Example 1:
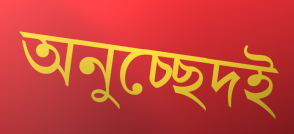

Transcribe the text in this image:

অনুচ্ছেদই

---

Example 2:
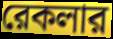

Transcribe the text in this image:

রেকলার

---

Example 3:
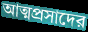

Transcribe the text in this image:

আত্মপ্রসাদের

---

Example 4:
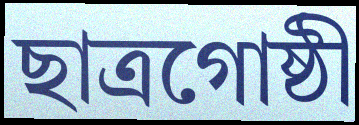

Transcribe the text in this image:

ছাত্রগোষ্ঠী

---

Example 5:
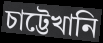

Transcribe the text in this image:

চাট্টেখানি